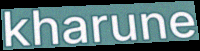
kharune